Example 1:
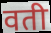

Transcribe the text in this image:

वती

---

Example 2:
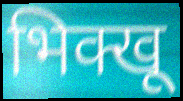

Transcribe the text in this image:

भिक्खू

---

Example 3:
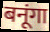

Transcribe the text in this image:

बनूंगा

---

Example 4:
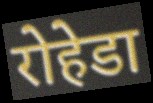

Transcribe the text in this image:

रोहेडा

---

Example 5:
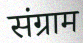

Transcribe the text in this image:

संग्राम